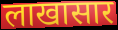
लाखासार